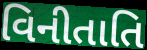
વિનીતાતિ